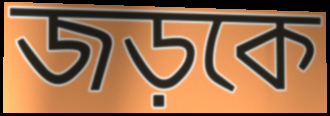
জড়কে